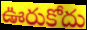
ఊరుకోదు